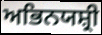
ਅਭਿਨਯਸ਼੍ਰੀ